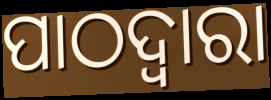
ପାଠଦ୍ଵାରା